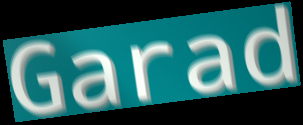
Garad